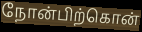
நோன்பிற்கொன்